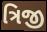
ત્રિજી